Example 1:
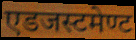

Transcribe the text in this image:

एडजस्टमेण्ट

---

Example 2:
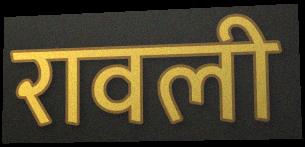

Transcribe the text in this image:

रावली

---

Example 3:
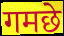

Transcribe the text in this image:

गमछे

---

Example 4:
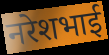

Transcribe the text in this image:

नरेशभाई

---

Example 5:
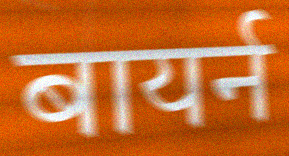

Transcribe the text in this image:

बायर्न